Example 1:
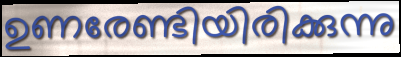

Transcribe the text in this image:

ഉണരേണ്ടിയിരിക്കുന്നു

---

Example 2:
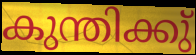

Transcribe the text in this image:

കുന്തിക്കു്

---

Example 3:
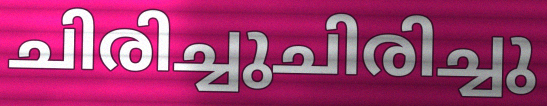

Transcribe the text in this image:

ചിരിച്ചുചിരിച്ചു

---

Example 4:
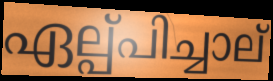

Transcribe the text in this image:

ഏല്പ്പിച്ചാല്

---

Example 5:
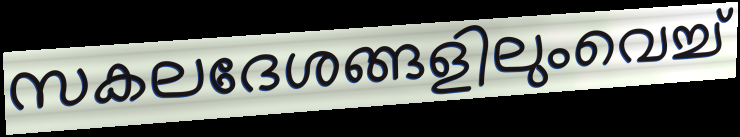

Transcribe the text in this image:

സകലദേശങ്ങളിലുംവെച്ച്